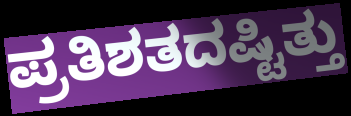
ಪ್ರತಿಶತದಷ್ಟಿತ್ತು